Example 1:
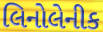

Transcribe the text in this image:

લિનોલેનીક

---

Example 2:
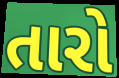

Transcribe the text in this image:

તારો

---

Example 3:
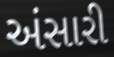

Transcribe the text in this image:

અંસારી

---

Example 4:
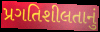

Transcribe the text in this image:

પ્રગતિશીલતાનું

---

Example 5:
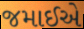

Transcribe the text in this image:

જમાઈએ